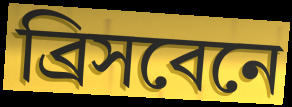
ব্রিসবেনে